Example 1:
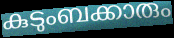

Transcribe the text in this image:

കുടുംബക്കാരും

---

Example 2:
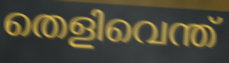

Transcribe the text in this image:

തെളിവെന്ത്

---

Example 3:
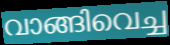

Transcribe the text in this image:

വാങ്ങിവെച്ച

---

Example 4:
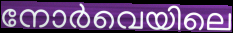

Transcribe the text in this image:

നോർവെയിലെ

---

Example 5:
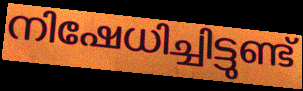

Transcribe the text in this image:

നിഷേധിച്ചിട്ടുണ്ട്